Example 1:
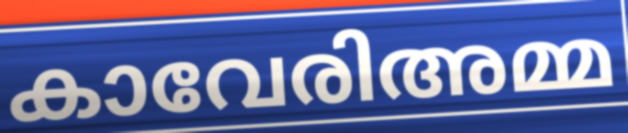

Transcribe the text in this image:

കാവേരിഅമ്മ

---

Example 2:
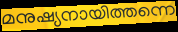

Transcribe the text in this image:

മനുഷ്യനായിത്തന്നെ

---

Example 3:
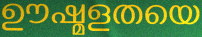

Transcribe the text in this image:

ഊഷ്മളതയെ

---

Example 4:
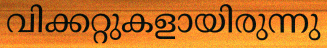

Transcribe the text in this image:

വിക്കറ്റുകളായിരുന്നു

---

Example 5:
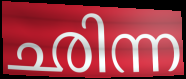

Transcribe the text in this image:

ഛിന്ന